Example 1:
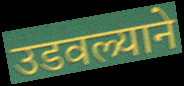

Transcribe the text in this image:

उडवल्याने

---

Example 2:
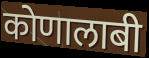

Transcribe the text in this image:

कोणालाबी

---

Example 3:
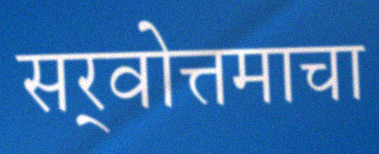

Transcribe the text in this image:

सर्वोत्तमाचा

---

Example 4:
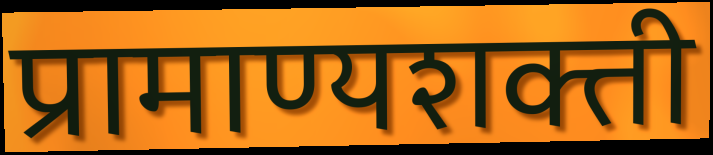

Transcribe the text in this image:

प्रामाण्यशक्ती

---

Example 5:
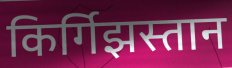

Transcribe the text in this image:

किर्गिझस्तान